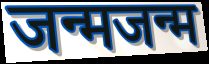
जन्मजन्म